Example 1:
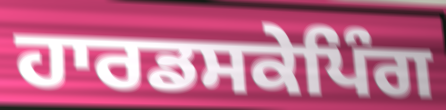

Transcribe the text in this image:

ਹਾਰਡਸਕੇਪਿੰਗ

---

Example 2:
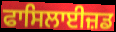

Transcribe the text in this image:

ਫਾਸਿਲਾਈਜ਼ਡ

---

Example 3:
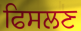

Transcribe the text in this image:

ਫਿਸਲਣ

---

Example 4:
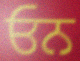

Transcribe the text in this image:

ਓਨ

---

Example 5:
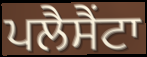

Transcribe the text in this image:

ਪਲੈਸੈਂਟਾ